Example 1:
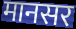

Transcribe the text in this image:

मानसर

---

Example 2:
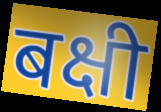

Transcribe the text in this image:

बक्षी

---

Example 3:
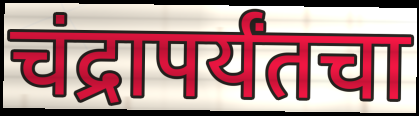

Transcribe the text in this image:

चंद्रापर्यंतचा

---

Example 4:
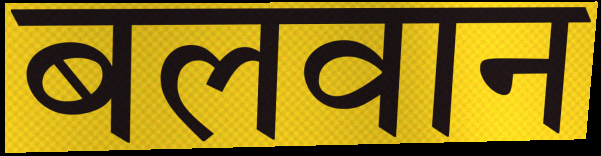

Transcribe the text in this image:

बलवान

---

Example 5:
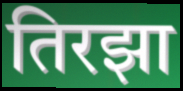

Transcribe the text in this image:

तिरझा